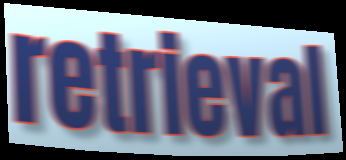
retrieval